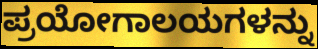
ಪ್ರಯೋಗಾಲಯಗಳನ್ನು